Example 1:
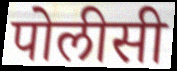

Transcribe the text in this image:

पोलीसी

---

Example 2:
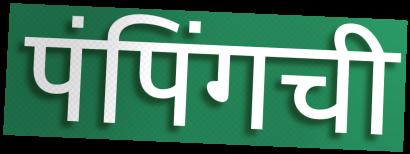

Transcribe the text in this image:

पंपिंगची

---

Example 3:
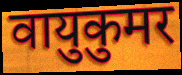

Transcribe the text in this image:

वायुकुमर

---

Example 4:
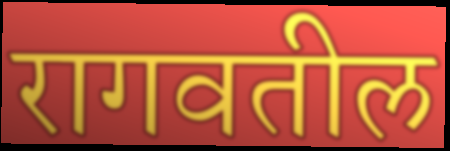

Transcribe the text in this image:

रागवतील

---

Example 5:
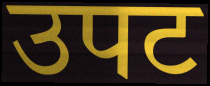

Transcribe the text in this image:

उपट